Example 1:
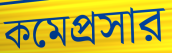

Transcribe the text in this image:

কমেপ্রসার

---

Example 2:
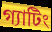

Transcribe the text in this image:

গ্যাটিং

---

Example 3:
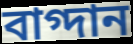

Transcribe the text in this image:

বাগ্দান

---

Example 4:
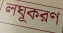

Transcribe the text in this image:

লঘূকরণ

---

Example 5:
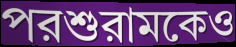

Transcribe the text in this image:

পরশুরামকেও